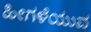
ಹೀಗಳೆಯುವ